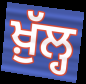
ਖ਼ੁੱਲ੍ਹ